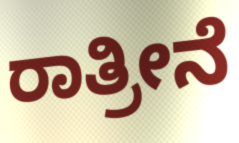
ರಾತ್ರೀನೆ